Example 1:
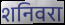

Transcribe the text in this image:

शनिवरा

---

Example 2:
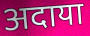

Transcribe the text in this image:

अदाया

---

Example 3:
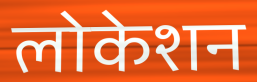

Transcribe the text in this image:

लोकेशन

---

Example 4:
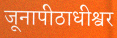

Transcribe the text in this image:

जूनापीठाधीश्वर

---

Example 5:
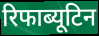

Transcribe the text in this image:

रिफाब्यूटिन